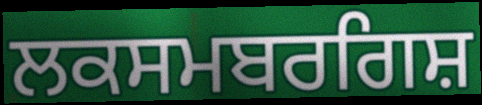
ਲਕਸਮਬਰਗਿਸ਼